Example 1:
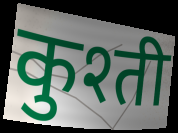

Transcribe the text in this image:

कुश्ती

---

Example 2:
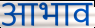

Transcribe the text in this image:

आभाव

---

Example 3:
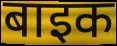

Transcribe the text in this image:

बाइक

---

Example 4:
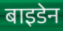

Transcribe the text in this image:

बाइडेन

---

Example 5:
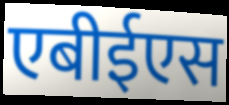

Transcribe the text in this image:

एबीईएस